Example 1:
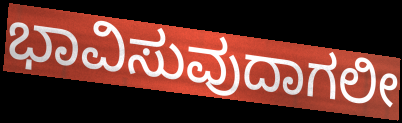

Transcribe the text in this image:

ಭಾವಿಸುವುದಾಗಲೀ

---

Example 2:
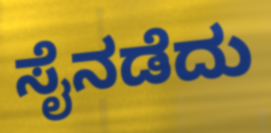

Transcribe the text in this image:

ಸೈನಡೆದು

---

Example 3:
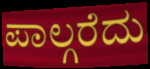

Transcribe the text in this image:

ಪಾಲ್ಗರೆದು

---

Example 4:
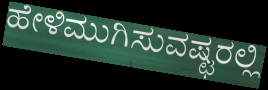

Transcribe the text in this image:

ಹೇಳಿಮುಗಿಸುವಷ್ಟರಲ್ಲಿ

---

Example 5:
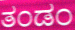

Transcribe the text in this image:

ತಂಡಂ